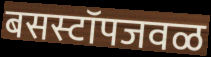
बसस्टॉपजवळ